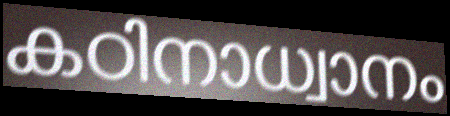
കഠിനാധ്വാനം